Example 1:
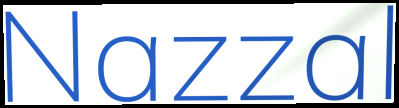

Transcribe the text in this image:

Nazzal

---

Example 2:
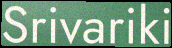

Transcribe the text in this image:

Srivariki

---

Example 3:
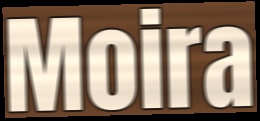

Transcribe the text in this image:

Moira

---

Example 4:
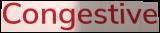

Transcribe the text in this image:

Congestive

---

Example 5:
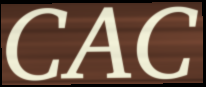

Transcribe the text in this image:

CAC